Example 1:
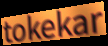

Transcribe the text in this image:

tokekar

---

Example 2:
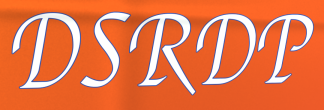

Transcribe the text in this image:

DSRDP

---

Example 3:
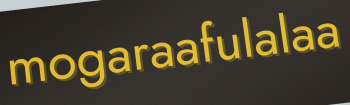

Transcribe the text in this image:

mogaraafulalaa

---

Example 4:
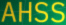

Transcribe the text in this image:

AHSS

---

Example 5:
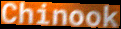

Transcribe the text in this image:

Chinook